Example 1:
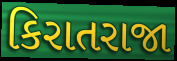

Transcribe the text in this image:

કિરાતરાજા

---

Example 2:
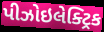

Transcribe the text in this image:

પીઝોઇલેક્ટ્રિક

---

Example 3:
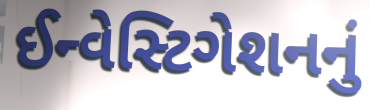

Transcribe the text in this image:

ઈન્વેસ્ટિગેશનનું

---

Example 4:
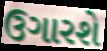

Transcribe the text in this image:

ઉગારશે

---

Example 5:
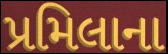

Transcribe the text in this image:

પ્રમિલાના